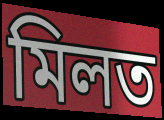
মিলত